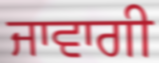
ਜਾਵਾਗੀ